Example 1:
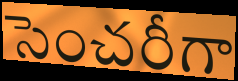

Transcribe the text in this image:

సెంచరీగా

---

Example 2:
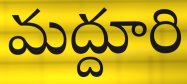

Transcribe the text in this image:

మద్దూరి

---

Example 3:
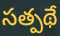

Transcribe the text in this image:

సత్పథే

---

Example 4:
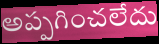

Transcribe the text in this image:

అప్పగించలేదు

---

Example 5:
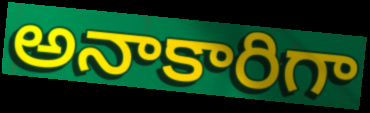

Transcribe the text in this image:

అనాకారిగా